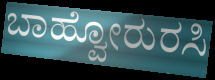
ಬಾಹ್ವೋರುರಸಿ